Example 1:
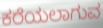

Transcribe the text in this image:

ಕರೆಯಲಾಗುವ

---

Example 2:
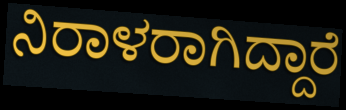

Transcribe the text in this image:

ನಿರಾಳರಾಗಿದ್ದಾರೆ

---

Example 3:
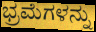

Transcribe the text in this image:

ಭ್ರಮೆಗಳನ್ನು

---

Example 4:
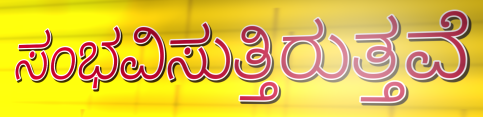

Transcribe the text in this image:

ಸಂಭವಿಸುತ್ತಿರುತ್ತವೆ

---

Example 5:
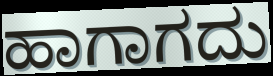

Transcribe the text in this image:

ಹಾಗಾಗದು